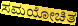
ಸಮಯೋಚಿತ